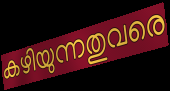
കഴിയുന്നതുവരെ